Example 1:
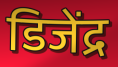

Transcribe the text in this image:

डिजेंद्र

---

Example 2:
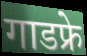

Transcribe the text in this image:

गाडफ्रे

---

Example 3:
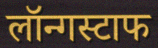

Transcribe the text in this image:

लॉन्गस्टाफ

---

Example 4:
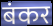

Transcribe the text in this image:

बंकर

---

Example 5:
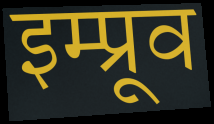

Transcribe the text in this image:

इम्प्रूव